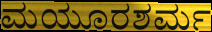
ಮಯೂರಶರ್ಮ